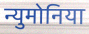
न्युमोनिया